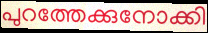
പുറത്തേക്കുനോക്കി